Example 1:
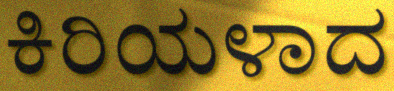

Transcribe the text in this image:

ಕಿರಿಯಳಾದ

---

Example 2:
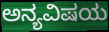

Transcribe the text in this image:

ಅನ್ಯವಿಷಯ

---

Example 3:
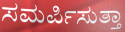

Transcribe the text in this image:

ಸಮರ್ಪಿಸುತ್ತಾ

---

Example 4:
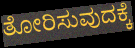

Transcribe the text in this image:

ತೋರಿಸುವುದಕ್ಕೆ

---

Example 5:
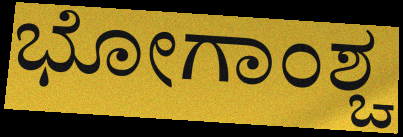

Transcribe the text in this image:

ಭೋಗಾಂಶ್ಚ